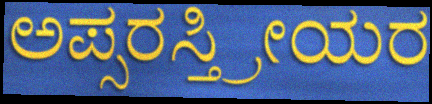
ಅಪ್ಸರಸ್ತ್ರೀಯರ